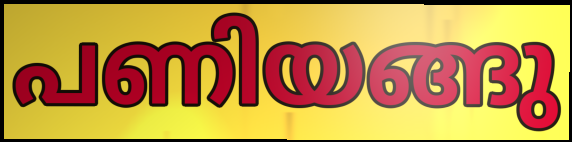
പണിയങ്ങു